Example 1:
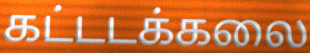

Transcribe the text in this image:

கட்டடக்கலை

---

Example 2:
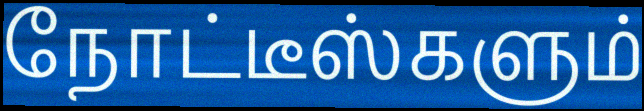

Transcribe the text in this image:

நோட்டீஸ்களும்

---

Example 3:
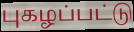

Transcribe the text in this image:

புகழப்பட்டு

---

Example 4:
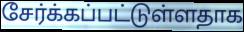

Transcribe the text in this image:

சேர்க்கப்பட்டுள்ளதாக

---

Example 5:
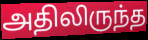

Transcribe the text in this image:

அதிலிருந்த